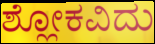
ಶ್ಲೋಕವಿದು